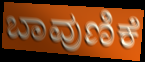
ಬಾವುಣಿಕೆ